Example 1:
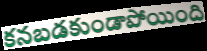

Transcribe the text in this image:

కనబడకుండాపోయింది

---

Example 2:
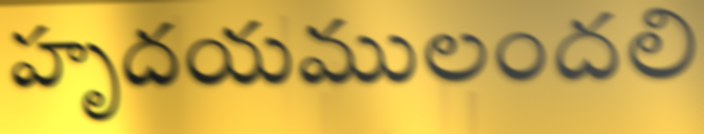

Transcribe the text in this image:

హృదయములందలి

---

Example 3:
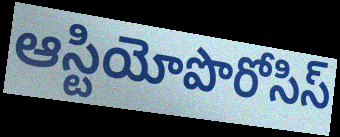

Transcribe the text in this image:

ఆస్టియోపొరోసిస్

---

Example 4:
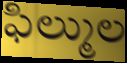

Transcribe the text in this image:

ఫిల్ముల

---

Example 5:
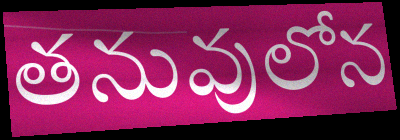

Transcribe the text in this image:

తనువులోన